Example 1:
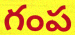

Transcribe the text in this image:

గంప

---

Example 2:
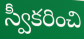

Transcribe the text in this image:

స్వీకరించి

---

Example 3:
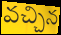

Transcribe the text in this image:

వచ్చిన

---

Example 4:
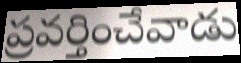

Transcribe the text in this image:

ప్రవర్తించేవాడు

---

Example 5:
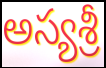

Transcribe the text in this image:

అస్యశ్రీ